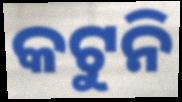
କଟୁନି